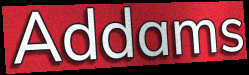
Addams